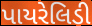
પાયરેલિડી